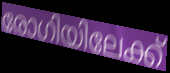
രോഗിയിലേക്ക്